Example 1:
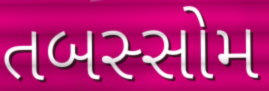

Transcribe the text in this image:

તબસ્સોમ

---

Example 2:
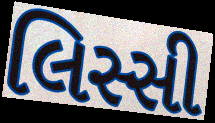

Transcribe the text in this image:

લિસ્સી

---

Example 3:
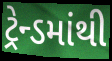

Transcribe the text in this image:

ટ્રેન્ડમાંથી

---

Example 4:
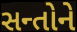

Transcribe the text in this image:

સન્તોને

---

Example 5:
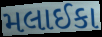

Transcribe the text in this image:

મલાઈકા